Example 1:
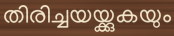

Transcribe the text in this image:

തിരിച്ചയയ്ക്കുകയും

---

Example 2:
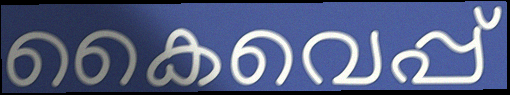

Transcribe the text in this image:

കൈവെപ്പ്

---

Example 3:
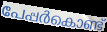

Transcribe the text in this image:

പേപ്പർകൊണ്ട്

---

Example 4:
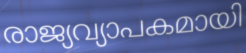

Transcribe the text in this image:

രാജ്യവ്യാപകമായി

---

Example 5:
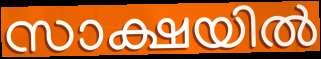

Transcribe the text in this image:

സാക്ഷയിൽ